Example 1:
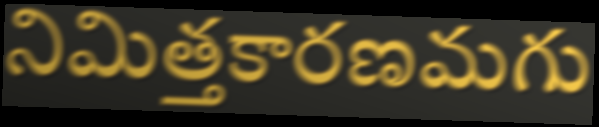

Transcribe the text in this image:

నిమిత్తకారణమగు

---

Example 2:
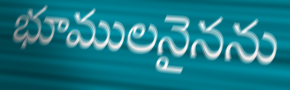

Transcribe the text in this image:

భూములనైనను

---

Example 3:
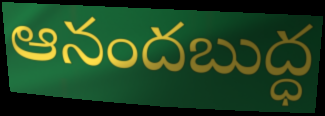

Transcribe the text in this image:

ఆనందబుద్ధ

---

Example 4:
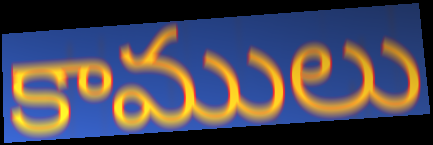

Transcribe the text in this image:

కాములు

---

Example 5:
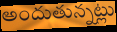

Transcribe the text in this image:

అందుతున్నట్లు